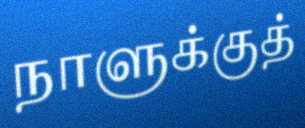
நாளுக்குத்